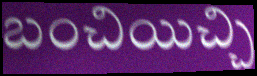
బంచియిచ్చి